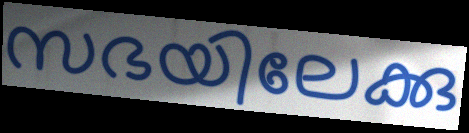
സഭയിലേക്കു